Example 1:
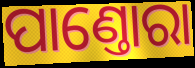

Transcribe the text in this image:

ପାଣ୍ତୋରା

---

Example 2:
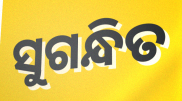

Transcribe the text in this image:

ସୁଗନ୍ଧିତ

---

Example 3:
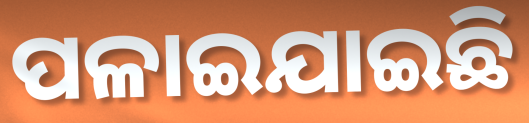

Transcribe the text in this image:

ପଳାଇଯାଇଛି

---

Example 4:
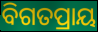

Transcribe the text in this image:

ବିଗତପ୍ରାୟ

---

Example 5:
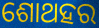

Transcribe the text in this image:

ଶୋଥହର